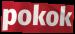
pokok